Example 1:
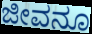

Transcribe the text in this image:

ಜೀವನೂ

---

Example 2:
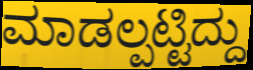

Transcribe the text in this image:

ಮಾಡಲ್ಪಟ್ಟಿದ್ದು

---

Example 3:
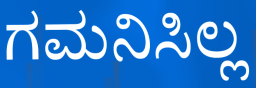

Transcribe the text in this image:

ಗಮನಿಸಿಲ್ಲ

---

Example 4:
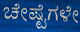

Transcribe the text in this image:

ಚೇಷ್ಟೆಗಳೇ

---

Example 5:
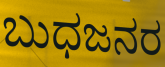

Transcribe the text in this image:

ಬುಧಜನರ